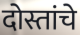
दोस्तांचे